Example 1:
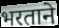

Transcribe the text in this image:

भरताने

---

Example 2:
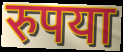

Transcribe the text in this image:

रुपया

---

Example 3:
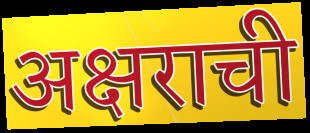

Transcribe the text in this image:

अक्षराची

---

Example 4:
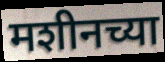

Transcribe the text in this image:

मशीनच्या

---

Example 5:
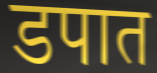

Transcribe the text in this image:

डपात